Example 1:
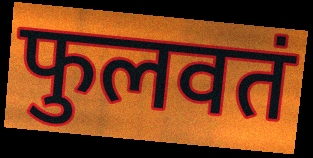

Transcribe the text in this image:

फुलवतं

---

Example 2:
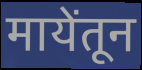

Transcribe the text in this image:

मायेंतून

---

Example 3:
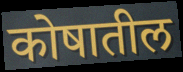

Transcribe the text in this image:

कोषातील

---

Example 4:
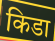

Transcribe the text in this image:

किडा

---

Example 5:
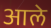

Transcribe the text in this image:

आले